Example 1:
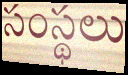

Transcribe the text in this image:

సంస్థలు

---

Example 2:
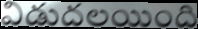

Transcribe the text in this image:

విడుదలయింది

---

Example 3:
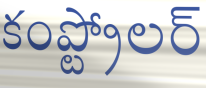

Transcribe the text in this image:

కంప్ట్రోలర్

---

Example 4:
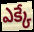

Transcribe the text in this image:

ఎక్కే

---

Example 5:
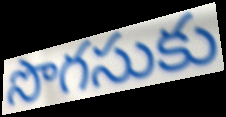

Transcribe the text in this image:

సొగసుకు